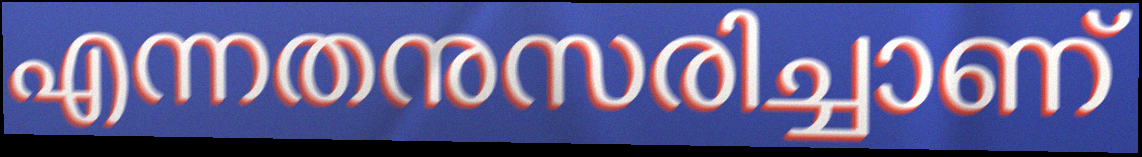
എന്നതനുസരിച്ചാണ്